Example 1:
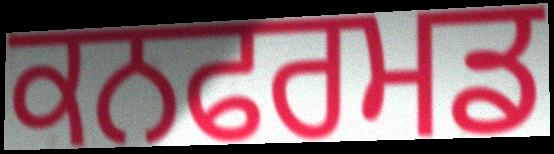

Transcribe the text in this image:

ਕਨਫਰਮਡ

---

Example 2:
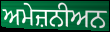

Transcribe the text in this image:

ਅਮੇਜ਼ਨੀਅਨ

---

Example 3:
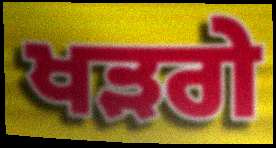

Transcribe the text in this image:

ਖੜਗੇ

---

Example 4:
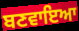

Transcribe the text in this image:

ਬਣਵਾਇਆ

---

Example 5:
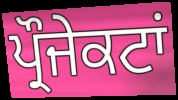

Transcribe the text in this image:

ਪ੍ਰੌਜੇਕਟਾਂ